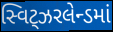
સ્વિટ્ઝરલેન્ડમાં